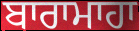
ਬਾਰਾਮਾਹਾ